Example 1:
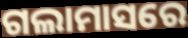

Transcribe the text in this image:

ଗଲାମାସରେ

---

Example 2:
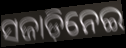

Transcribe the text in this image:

ସଜାଡ଼ିନେଇ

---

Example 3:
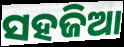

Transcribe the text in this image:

ସହଜିଆ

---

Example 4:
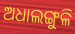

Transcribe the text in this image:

ଅଧାଲଙ୍ଗୁଳି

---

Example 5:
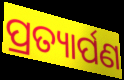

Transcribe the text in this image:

ପ୍ରତ୍ୟାର୍ପଣ